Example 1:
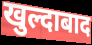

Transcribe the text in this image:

खुल्दाबाद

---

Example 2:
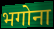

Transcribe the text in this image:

भगोना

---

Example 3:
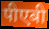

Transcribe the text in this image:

पीएबी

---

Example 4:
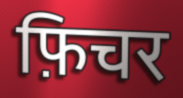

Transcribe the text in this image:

फ़िचर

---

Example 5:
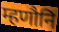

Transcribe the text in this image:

म्हणौनि